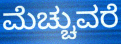
ಮೆಚ್ಚುವರೆ